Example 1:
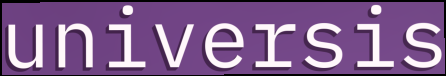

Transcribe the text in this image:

universis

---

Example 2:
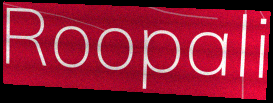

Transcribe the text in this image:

Roopali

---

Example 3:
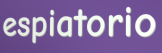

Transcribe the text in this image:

espiatorio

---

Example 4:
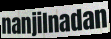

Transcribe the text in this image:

nanjilnadan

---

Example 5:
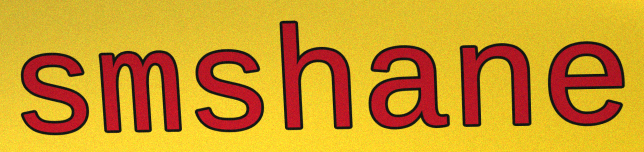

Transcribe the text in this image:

smshane